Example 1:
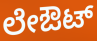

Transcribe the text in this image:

ಲೇಔಟ್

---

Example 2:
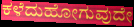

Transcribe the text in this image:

ಕಳೆದುಹೋಗುವುದೇ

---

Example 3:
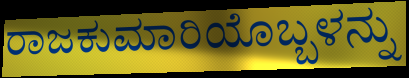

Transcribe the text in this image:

ರಾಜಕುಮಾರಿಯೊಬ್ಬಳನ್ನು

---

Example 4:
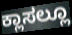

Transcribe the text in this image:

ಕ್ಲಾಸಲ್ಲೂ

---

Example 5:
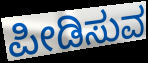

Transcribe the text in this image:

ಪೀಡಿಸುವ